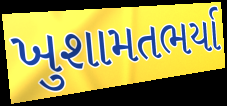
ખુશામતભર્યા